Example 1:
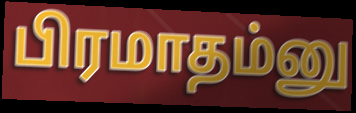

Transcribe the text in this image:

பிரமாதம்னு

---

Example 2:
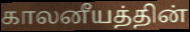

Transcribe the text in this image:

காலனீயத்தின்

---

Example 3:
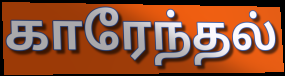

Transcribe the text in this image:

காரேந்தல்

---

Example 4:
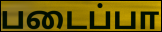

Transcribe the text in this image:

படைப்பா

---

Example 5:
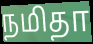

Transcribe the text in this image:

நமிதா